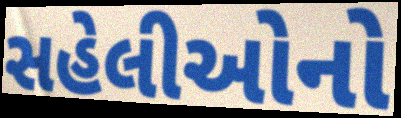
સહેલીઓનો